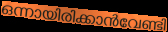
ഒന്നായിരിക്കാൻവേണ്ടി